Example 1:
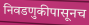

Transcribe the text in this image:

निवडणुकीपासूनच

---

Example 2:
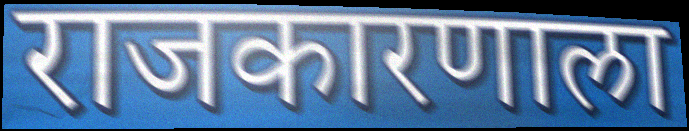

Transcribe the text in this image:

राजकारणाला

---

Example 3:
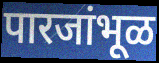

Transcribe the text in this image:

पारजांभूळ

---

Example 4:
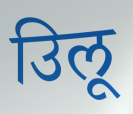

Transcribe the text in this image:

उिलू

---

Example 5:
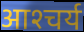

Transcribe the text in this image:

आश्चर्य